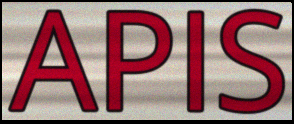
APIS